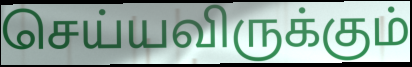
செய்யவிருக்கும்